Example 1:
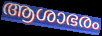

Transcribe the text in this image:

ആശാഭരം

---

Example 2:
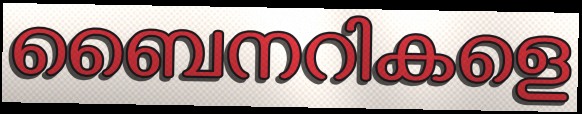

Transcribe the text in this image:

ബൈനറികളെ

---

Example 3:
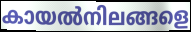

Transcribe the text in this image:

കായൽനിലങ്ങളെ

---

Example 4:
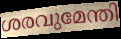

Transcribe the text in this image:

ശരവുമേന്തി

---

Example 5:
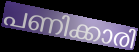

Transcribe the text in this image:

പണിക്കാരി